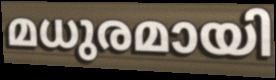
മധുരമായി